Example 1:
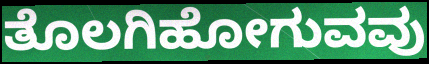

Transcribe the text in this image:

ತೊಲಗಿಹೋಗುವವು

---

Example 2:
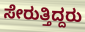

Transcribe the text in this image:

ಸೇರುತ್ತಿದ್ದರು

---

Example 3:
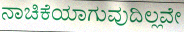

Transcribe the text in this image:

ನಾಚಿಕೆಯಾಗುವುದಿಲ್ಲವೇ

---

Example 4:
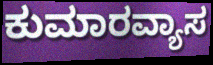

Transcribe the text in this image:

ಕುಮಾರವ್ಯಾಸ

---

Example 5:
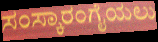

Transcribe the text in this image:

ಸಂಸ್ಕಾರಂಗೈಯಲು